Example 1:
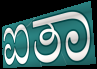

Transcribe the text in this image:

ಐತಾ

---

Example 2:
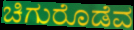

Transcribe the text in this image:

ಚಿಗುರೊಡೆವ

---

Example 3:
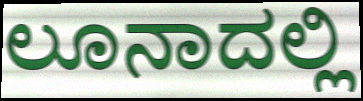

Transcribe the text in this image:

ಲೂನಾದಲ್ಲಿ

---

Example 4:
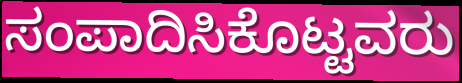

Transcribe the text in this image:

ಸಂಪಾದಿಸಿಕೊಟ್ಟವರು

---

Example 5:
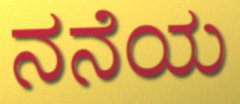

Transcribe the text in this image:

ನನೆಯ